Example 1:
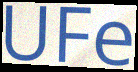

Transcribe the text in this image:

UFe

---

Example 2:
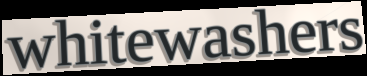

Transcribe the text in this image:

whitewashers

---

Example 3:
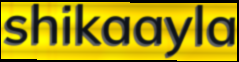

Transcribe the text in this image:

shikaayla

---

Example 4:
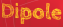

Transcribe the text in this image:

Dipole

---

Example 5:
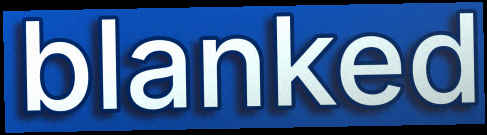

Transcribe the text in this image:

blanked